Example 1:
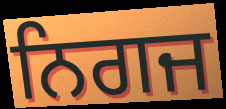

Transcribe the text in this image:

ਨਿਗਜ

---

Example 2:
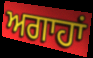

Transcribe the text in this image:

ਅਗਾਹਾਂ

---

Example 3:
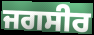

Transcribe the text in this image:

ਜਗਸੀਰ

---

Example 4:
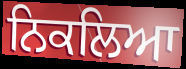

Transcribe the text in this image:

ਨਿਕਲਿਆ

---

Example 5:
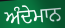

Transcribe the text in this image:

ਅੰਦੇਮਾਨ